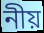
নীয়